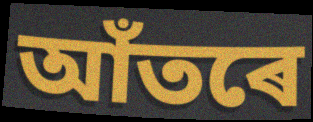
আঁতৰে